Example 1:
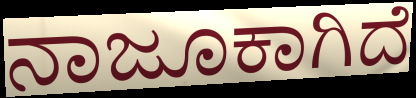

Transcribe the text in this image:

ನಾಜೂಕಾಗಿದೆ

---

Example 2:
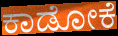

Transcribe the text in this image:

ಕಾಡೋಕೆ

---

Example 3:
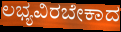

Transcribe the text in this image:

ಲಭ್ಯವಿರಬೇಕಾದ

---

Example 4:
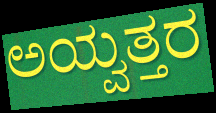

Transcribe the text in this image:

ಅಯ್ವತ್ತರ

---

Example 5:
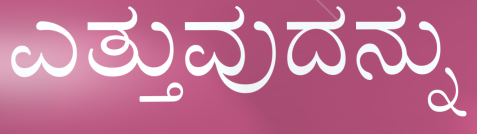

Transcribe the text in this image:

ಎತ್ತುವುದನ್ನು